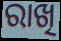
ରାଖି